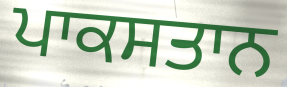
ਪਾਕਸਤਾਨ